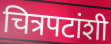
चित्रपटांशी